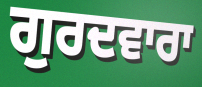
ਗੁਰਦਵਾਰਾ